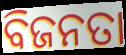
ବିଜନତା